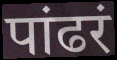
पांढरं